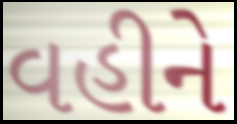
વહીને